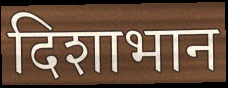
दिशाभान